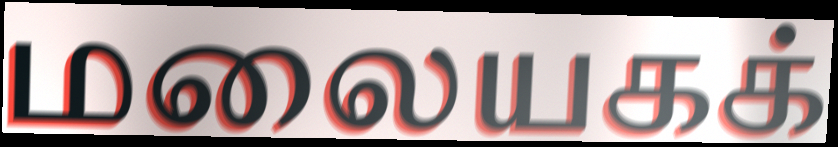
மலையகக்